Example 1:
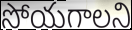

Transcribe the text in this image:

సోయగాలని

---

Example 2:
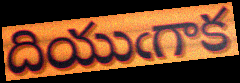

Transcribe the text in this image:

దియుఁగాక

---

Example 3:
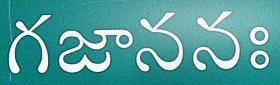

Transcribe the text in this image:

గజాననః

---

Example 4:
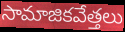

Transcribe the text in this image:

సామాజికవేత్తలు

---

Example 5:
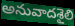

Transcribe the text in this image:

అనువాదశైలి